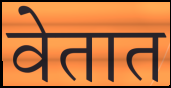
वेतात